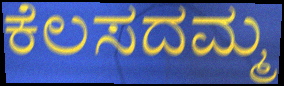
ಕೆಲಸದಮ್ಮ